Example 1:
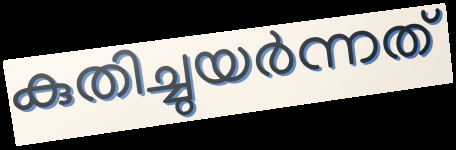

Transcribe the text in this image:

കുതിച്ചുയർന്നത്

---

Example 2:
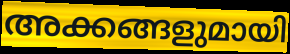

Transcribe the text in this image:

അക്കങ്ങളുമായി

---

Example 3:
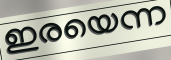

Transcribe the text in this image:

ഇരയെന്ന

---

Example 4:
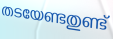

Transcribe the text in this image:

തടയേണ്ടതുണ്ട്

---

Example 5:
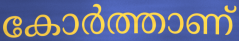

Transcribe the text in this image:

കോർത്താണ്